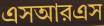
এসআরএস